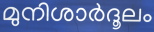
മുനിശാർദൂലം